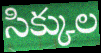
సిక్కుల